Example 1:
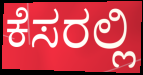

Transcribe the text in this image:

ಕೆಸರಲ್ಲಿ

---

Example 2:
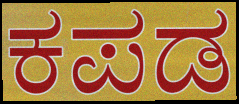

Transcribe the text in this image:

ಕಪಡ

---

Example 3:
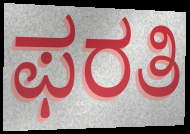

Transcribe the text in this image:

ಫರತಿ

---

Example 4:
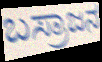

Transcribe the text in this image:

ಬಸ್ರಾಜನ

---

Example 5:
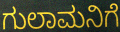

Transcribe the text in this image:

ಗುಲಾಮನಿಗೆ